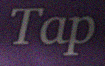
Tap